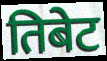
तिबेट